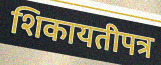
शिकायतीपत्र